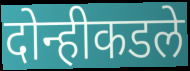
दोन्हीकडले